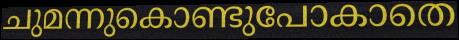
ചുമന്നുകൊണ്ടുപോകാതെ